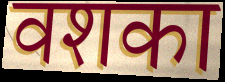
वशका